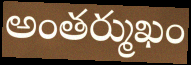
అంతర్ముఖం